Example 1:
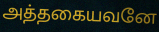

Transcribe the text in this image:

அத்தகையவனே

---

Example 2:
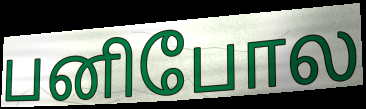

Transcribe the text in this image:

பனிபோல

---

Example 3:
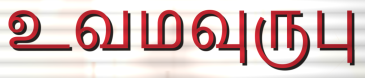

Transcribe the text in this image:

உவமவுருபு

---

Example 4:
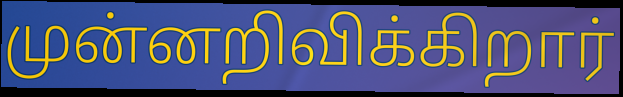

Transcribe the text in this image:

முன்னறிவிக்கிறார்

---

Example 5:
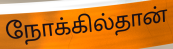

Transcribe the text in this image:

நோக்கில்தான்